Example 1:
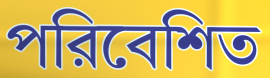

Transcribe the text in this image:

পরিবেশিত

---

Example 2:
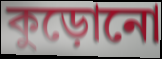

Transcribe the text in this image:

কুড়োনো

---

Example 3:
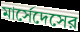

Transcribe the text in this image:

মার্সেদেসের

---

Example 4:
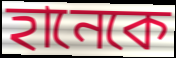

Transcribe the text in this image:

হানেকে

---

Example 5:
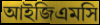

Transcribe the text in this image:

আইজিএমসি